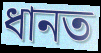
ধানত